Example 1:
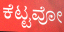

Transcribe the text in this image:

ಕೆಟ್ಟವೋ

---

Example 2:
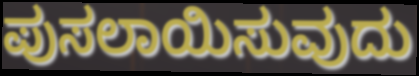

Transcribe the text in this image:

ಪುಸಲಾಯಿಸುವುದು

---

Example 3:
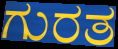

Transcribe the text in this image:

ಗುರತ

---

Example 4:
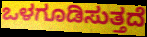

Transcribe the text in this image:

ಒಳಗೂಡಿಸುತ್ತದೆ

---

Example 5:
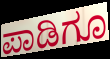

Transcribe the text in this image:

ಪಾಡಿಗೂ